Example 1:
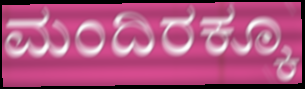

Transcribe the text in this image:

ಮಂದಿರಕ್ಕೂ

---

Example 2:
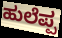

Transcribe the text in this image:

ಹುಲೆಪ್ಪ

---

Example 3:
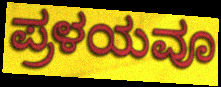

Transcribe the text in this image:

ಪ್ರಳಯವೂ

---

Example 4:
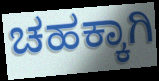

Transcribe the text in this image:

ಚಹಕ್ಕಾಗಿ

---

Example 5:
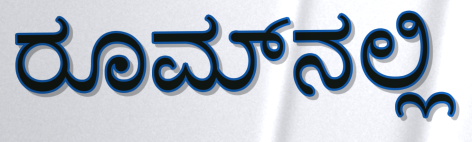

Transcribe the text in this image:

ರೂಮ್‌ನಲ್ಲಿ